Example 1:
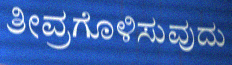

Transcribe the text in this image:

ತೀವ್ರಗೊಳಿಸುವುದು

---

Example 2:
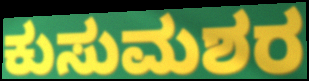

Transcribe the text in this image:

ಕುಸುಮಶರ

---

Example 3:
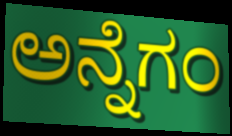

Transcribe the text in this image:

ಅನ್ನೆಗಂ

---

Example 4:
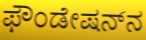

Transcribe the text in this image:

ಫೌಂಡೇಷನ್‌ನ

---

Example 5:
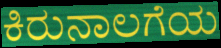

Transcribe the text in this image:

ಕಿರುನಾಲಗೆಯ